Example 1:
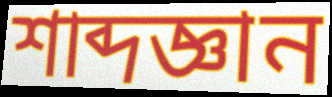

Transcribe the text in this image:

শাব্দজ্ঞান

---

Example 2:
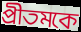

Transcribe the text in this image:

প্রীতমকে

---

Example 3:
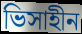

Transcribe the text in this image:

ভিসাহীন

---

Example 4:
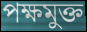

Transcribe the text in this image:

পক্ষমুক্ত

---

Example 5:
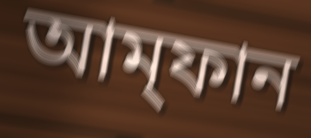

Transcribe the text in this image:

আম্‌ফান